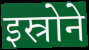
इस्रोने